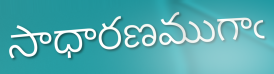
సాధారణముగాఁ